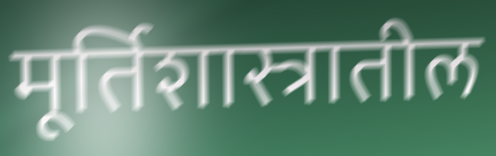
मूर्तिशास्त्रातील